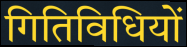
गितिविधियों